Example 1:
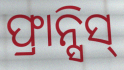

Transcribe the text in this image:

ଫ୍ରାନ୍ସିସ୍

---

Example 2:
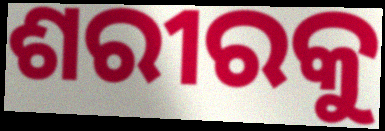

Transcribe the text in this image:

ଶରୀରକୁ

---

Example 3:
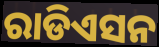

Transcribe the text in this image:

ରାଡିଏସନ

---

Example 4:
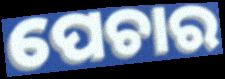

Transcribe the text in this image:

ପେଚାର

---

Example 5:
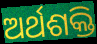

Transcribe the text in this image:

ଅର୍ଥଶକ୍ତି